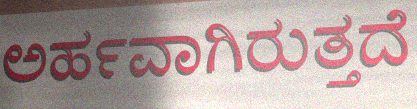
ಅರ್ಹವಾಗಿರುತ್ತದೆ